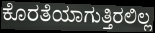
ಕೊರತೆಯಾಗುತ್ತಿರಲಿಲ್ಲ